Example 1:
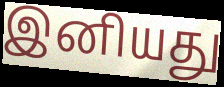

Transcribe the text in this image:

இனியது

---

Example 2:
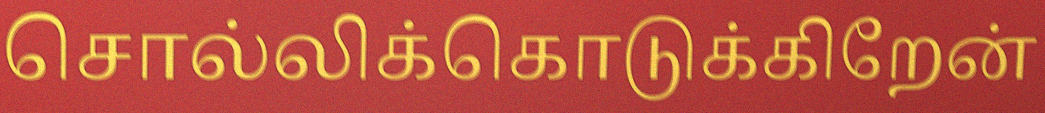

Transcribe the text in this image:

சொல்லிக்கொடுக்கிறேன்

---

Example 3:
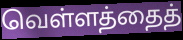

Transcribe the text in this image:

வெள்ளத்தைத்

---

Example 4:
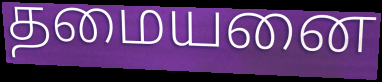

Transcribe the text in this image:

தமையனை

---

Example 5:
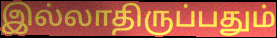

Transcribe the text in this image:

இல்லாதிருப்பதும்